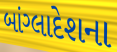
બાંગ્લાદેશના